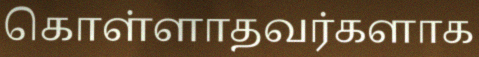
கொள்ளாதவர்களாக